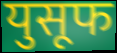
युसूफ